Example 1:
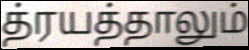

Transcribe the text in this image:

த்ரயத்தாலும்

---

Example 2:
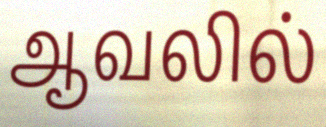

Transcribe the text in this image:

ஆவலில்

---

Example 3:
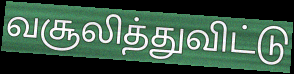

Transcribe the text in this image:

வசூலித்துவிட்டு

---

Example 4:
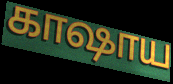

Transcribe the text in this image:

காஷாய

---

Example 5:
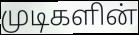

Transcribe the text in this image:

முடிகளின்